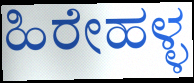
ಹಿರೇಹಳ್ಳ